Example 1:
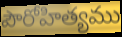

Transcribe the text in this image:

పౌరోహిత్యము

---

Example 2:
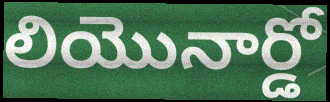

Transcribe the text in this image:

లియొనార్డో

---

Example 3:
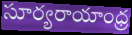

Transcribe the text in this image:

సూర్యరాయాంధ్ర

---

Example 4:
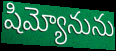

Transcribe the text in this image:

షిమ్యోనును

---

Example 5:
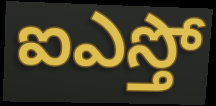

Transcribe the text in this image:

ఐఎస్తో